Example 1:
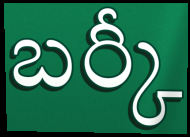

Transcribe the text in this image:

బర్కీ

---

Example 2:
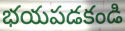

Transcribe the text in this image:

భయపడకండి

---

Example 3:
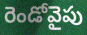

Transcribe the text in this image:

రెండోవైపు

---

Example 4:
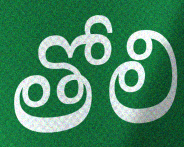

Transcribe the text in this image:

తోలి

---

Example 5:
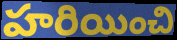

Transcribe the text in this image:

హరియించి